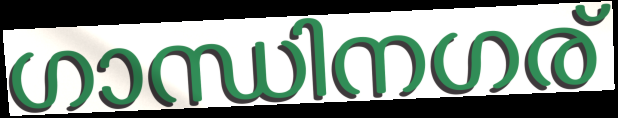
ഗാന്ധിനഗര്